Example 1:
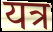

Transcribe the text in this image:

यत्र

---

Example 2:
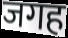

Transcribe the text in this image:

जगह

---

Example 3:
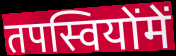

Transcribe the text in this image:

तपस्वियोंमें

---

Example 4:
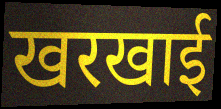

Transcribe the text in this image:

खरखाई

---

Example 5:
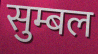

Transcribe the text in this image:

सुम्बल